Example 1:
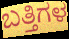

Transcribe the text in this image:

ಬತ್ತಿಗಳ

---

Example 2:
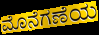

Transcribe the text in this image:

ಮೊನೆಗಣೆಯ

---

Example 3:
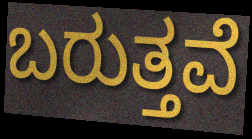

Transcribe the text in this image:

ಬರುತ್ತವೆ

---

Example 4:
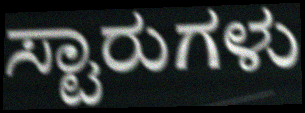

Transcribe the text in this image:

ಸ್ಟಾರುಗಳು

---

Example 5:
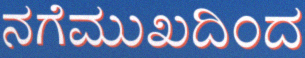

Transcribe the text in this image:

ನಗೆಮುಖದಿಂದ